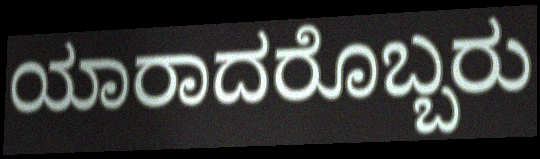
ಯಾರಾದರೊಬ್ಬರು